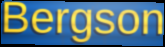
Bergson